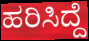
ಹರಿಸಿದ್ದೆ